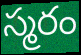
స్మరం